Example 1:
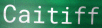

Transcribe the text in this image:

Caitiff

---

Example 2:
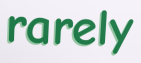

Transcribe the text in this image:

rarely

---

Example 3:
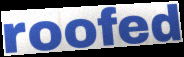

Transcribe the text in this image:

roofed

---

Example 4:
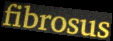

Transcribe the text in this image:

fibrosus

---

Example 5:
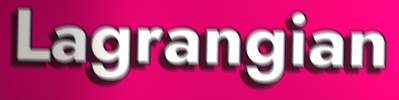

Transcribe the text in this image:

Lagrangian